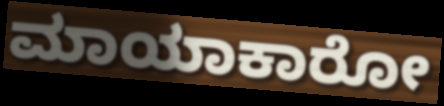
ಮಾಯಾಕಾರೋ